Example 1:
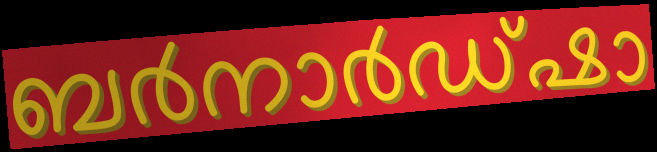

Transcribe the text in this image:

ബർനാർഡ്ഷാ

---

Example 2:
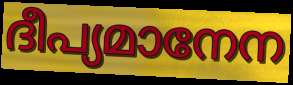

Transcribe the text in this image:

ദീപ്യമാനേന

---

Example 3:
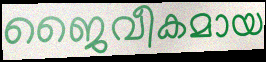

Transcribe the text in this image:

ജൈവീകമായ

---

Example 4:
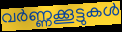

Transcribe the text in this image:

വർണ്ണക്കൂട്ടുകൾ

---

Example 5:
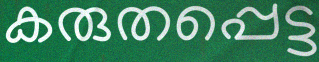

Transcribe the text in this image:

കരുതപ്പെട്ട